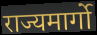
राज्यमार्गो